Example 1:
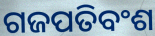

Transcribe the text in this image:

ଗଜପତିବଂଶ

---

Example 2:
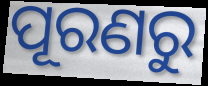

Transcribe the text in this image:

ପୂରଣରୁ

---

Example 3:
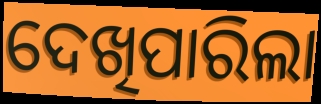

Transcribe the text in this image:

ଦେଖିପାରିଲା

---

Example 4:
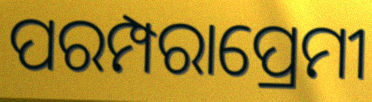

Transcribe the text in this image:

ପରମ୍ପରାପ୍ରେମୀ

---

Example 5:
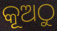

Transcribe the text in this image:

କୂଅଠୁ